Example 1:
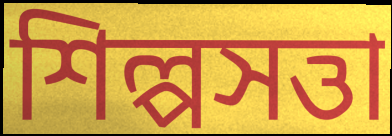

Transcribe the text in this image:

শিল্পসত্তা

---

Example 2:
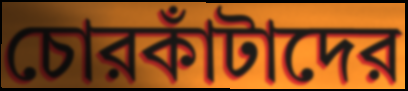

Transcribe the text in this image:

চোরকাঁটাদের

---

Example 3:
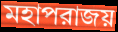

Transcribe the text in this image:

মহাপরাজয়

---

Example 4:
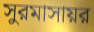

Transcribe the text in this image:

সুরমাসায়র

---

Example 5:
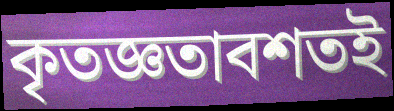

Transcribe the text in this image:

কৃতজ্ঞতাবশতই